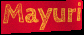
Mayuri